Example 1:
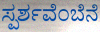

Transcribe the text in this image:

ಸ್ಪರ್ಶವೆಂಬೆನೆ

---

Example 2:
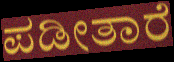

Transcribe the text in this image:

ಪಡೀತಾರೆ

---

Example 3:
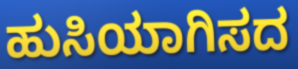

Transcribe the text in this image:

ಹುಸಿಯಾಗಿಸದ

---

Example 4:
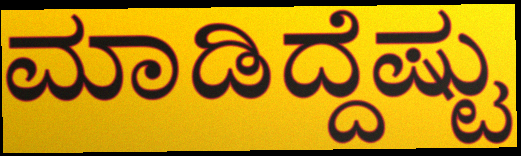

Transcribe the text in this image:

ಮಾಡಿದ್ದೆಷ್ಟು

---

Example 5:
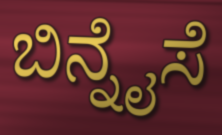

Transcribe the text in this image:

ಬಿನ್ನೈಸೆ